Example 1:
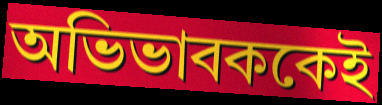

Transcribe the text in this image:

অভিভাবককেই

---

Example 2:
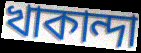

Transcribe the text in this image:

খাকান্দা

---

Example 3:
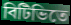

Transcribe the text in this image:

বিটিভিতে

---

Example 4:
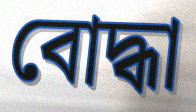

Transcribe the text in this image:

বোদ্ধা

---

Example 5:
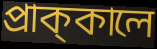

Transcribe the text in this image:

প্রাক্‌কালে